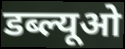
डब्ल्यूओ